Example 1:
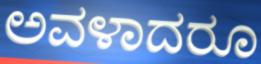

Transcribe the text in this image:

ಅವಳಾದರೂ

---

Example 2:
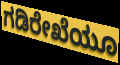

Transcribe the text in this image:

ಗಡಿರೇಖೆಯೂ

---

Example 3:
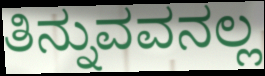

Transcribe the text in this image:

ತಿನ್ನುವವನಲ್ಲ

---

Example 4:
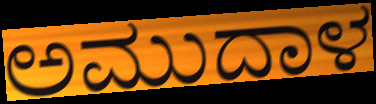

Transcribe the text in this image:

ಅಮುದಾಳ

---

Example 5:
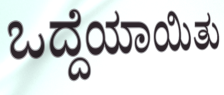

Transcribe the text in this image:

ಒದ್ದೆಯಾಯಿತು